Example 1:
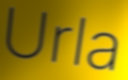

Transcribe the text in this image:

Urla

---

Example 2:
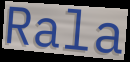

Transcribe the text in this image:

Rala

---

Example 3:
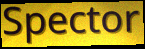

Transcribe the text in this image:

Spector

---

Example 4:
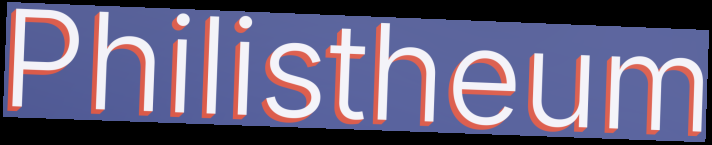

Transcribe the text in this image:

Philistheum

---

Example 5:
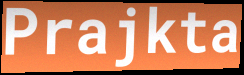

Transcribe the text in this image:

Prajkta